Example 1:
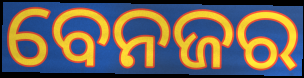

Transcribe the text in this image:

ବେନଜର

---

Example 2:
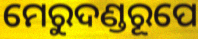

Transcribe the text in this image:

ମେରୁଦଣ୍ଡରୂପେ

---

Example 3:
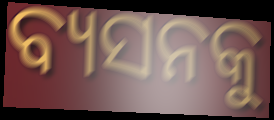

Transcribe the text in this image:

ବ୍ୟସନକୁ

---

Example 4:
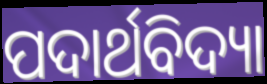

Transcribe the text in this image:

ପଦାର୍ଥବିଦ୍ୟା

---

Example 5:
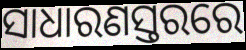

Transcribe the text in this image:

ସାଧାରଣସ୍ତରରେ